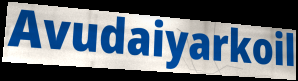
Avudaiyarkoil